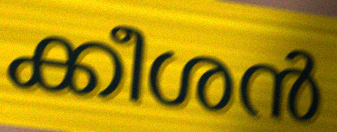
ക്കീശൻ